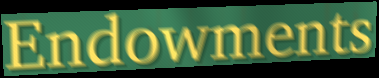
Endowments